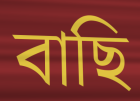
বাছি